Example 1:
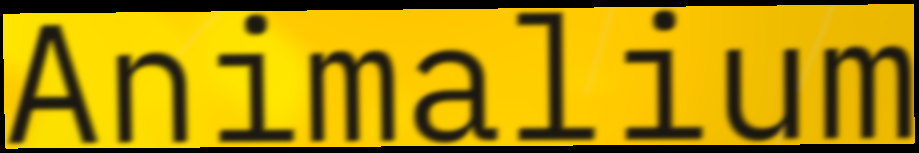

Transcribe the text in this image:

Animalium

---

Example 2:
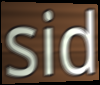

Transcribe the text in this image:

sid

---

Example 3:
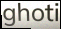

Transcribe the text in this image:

ghoti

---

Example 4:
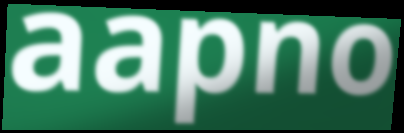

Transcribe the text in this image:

aapno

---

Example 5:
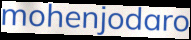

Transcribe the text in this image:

mohenjodaro